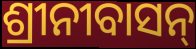
ଶ୍ରୀନୀବାସନ୍